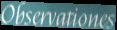
Observationes